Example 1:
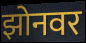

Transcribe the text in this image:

झोनवर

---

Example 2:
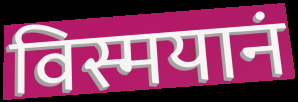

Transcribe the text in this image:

विस्मयानं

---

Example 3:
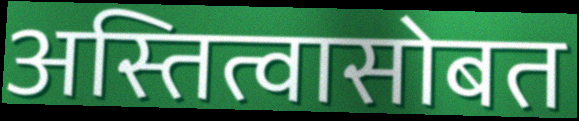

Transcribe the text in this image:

अस्तित्वासोबत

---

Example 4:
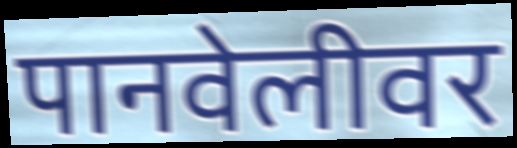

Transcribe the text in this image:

पानवेलीवर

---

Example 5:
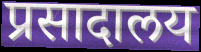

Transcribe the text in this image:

प्रसादालय